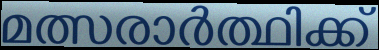
മത്സരാർത്ഥിക്ക്